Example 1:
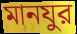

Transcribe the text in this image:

মানযুর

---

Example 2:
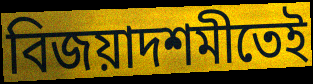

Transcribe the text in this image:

বিজয়াদশমীতেই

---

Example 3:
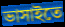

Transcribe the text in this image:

ভাসাইতে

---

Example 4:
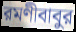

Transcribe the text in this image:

রমণীবাবুর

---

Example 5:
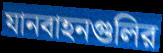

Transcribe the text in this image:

যানবাহনগুলির